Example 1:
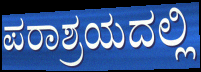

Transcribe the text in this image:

ಪರಾಶ್ರಯದಲ್ಲಿ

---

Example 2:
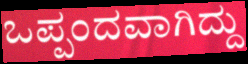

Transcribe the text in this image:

ಒಪ್ಪಂದವಾಗಿದ್ದು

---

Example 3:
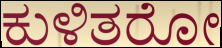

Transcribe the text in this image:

ಕುಳಿತರೋ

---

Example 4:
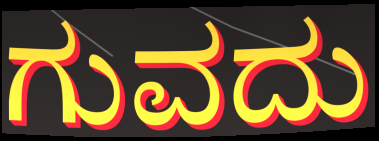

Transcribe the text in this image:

ಗುವದು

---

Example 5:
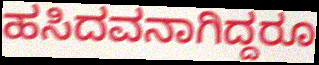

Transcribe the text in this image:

ಹಸಿದವನಾಗಿದ್ದರೂ